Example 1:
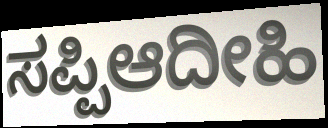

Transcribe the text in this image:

ಸಪ್ಪಿಆದೀಹಿ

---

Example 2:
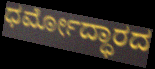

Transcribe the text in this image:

ಧರ್ಮೋದ್ಧಾರದ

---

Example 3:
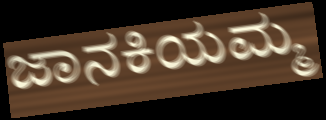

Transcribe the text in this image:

ಜಾನಕಿಯಮ್ಮ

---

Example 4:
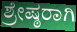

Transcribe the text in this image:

ಶ್ರೇಷ್ಠರಾಗಿ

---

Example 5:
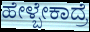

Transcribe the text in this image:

ಹೇಳ್ಬೇಕಾದ್ರೆ